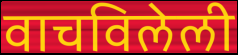
वाचविलेली